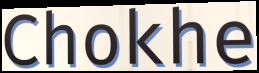
Chokhe